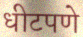
धीटपणे